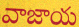
వాజాయ